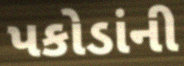
પકોડાંની